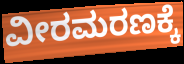
ವೀರಮರಣಕ್ಕೆ